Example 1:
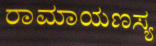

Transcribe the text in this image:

ರಾಮಾಯಣಸ್ಯ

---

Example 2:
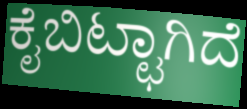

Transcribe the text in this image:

ಕೈಬಿಟ್ಟಾಗಿದೆ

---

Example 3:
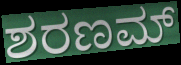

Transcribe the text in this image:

ಶರಣಮ್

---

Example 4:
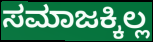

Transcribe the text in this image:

ಸಮಾಜಕ್ಕಿಲ್ಲ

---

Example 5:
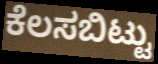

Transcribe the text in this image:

ಕೆಲಸಬಿಟ್ಟು